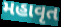
મહાવૃત